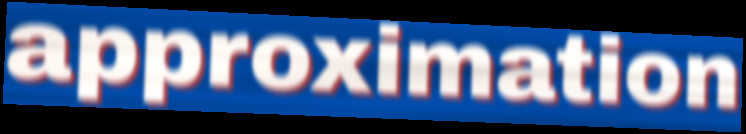
approximation